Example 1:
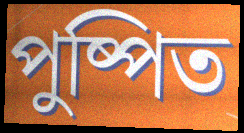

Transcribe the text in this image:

পুষ্পিত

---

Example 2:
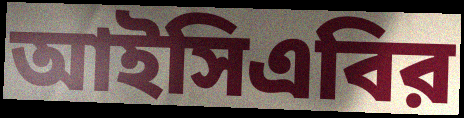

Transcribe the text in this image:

আইসিএবির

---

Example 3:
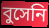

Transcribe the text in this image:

বুসেনি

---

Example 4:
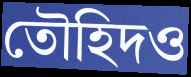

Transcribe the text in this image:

তৌহিদও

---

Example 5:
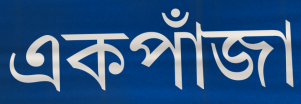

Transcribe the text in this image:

একপাঁজা